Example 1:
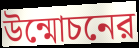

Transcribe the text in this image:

উন্মোচনের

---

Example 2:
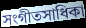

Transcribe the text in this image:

সংগীতসাধিকা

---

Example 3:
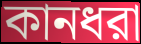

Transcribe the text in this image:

কানধরা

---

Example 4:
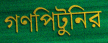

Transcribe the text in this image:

গণপিটুনির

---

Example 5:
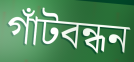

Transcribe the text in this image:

গাঁটবন্ধন